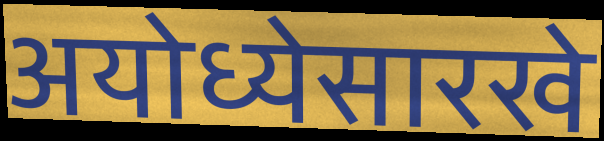
अयोध्येसारखे